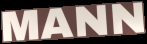
MANN